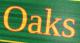
Oaks